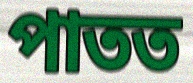
পাতত